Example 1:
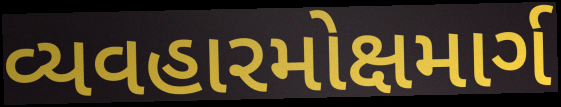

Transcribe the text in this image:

વ્યવહારમોક્ષમાર્ગ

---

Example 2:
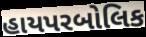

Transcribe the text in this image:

હાયપરબોલિક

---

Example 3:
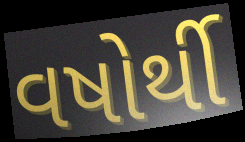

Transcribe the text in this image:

વષોર્થી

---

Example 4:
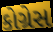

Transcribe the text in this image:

કોગ્રેસ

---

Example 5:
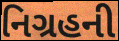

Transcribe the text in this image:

નિગ્રહની